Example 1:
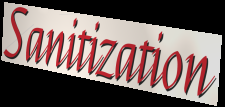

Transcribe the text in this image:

Sanitization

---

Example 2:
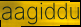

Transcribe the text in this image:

aagiddu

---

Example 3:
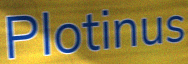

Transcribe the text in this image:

Plotinus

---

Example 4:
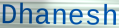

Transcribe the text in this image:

Dhanesh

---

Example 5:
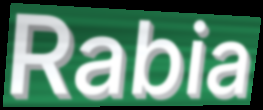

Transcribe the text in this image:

Rabia